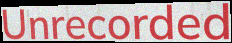
Unrecorded